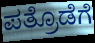
ಪತ್ರೊಡೆಗೆ